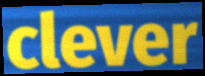
clever